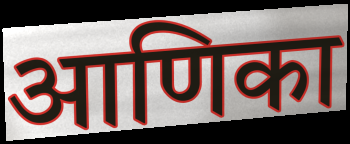
आणिका